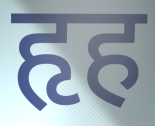
हृह